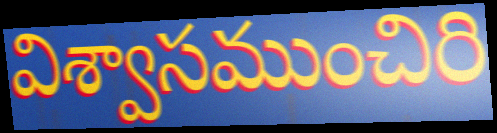
విశ్వాసముంచిరి